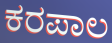
ಕರಪಾಲ